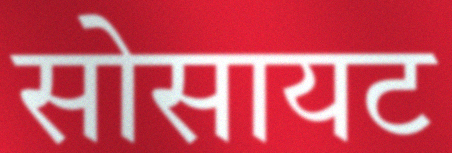
सोसायट